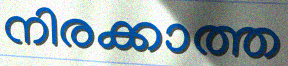
നിരക്കാത്ത